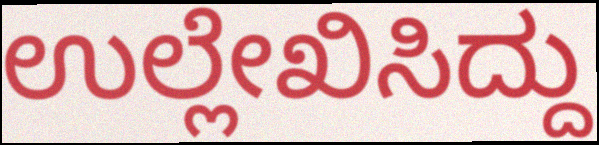
ಉಲ್ಲೇಖಿಸಿದ್ದು